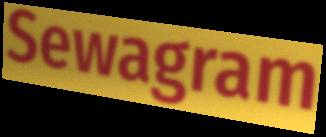
Sewagram